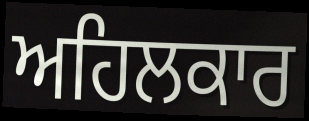
ਅਹਿਲਕਾਰ